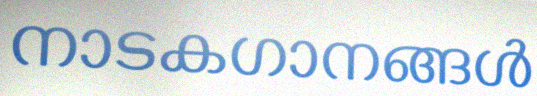
നാടകഗാനങ്ങൾ